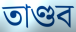
তাণ্ডব